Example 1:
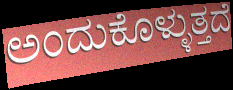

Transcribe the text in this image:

ಅಂದುಕೊಳ್ಳುತ್ತದೆ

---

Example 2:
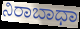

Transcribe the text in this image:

ನಿರಾಬಾಧಾ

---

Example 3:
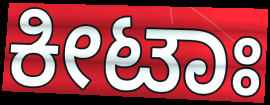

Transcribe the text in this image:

ಕೀಟಾಃ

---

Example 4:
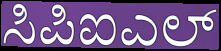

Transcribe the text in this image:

ಸಿಪಿಐಎಲ್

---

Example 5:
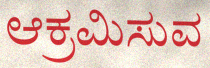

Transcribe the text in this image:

ಆಕ್ರಮಿಸುವ